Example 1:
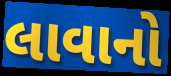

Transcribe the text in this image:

લાવાનો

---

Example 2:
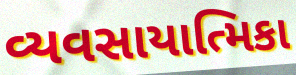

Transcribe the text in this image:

વ્યવસાયાત્મિકા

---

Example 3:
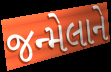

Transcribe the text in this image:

જન્મેલાને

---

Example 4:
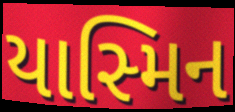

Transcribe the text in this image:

યાસ્મિન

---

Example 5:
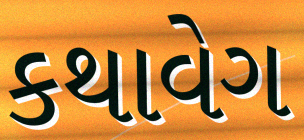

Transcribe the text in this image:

કથાવેગ